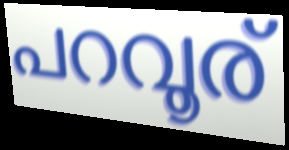
പറവൂര്